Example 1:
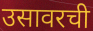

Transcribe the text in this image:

उसावरची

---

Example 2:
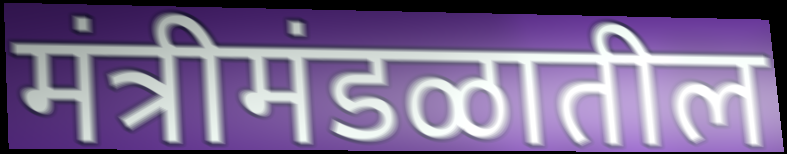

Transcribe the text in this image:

मंत्रीमंडळातील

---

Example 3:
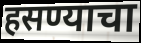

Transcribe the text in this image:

हसण्याचा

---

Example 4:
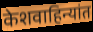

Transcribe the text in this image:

केशवाहिन्यांत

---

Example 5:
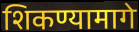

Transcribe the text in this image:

शिकण्यामागे